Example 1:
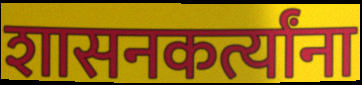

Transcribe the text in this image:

शासनकर्त्यांना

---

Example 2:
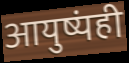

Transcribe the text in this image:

आयुष्यंही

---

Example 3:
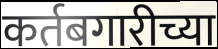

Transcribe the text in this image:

कर्तबगारीच्या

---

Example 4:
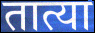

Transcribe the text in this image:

तात्या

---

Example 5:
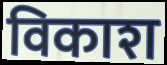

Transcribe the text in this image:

विकाश